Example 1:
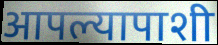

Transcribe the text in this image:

आपल्यापाशी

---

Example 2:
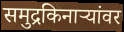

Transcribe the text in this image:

समुद्रकिनाऱ्यांवर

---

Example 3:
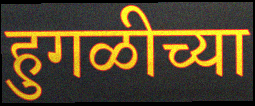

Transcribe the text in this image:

हुगळीच्या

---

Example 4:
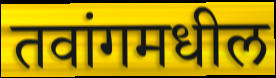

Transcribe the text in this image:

तवांगमधील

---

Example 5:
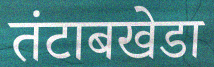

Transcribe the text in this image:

तंटाबखेडा